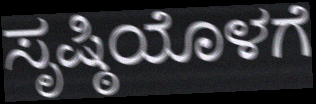
ಸೃಷ್ಠಿಯೊಳಗೆ